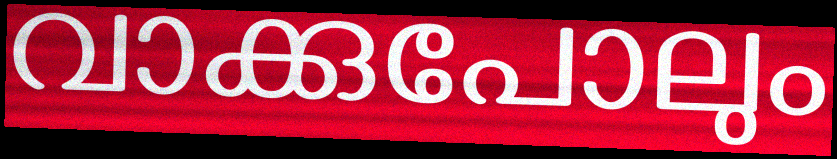
വാക്കുപോലും